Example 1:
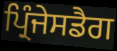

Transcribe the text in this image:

ਪ੍ਰਿੰਜੇਸਡੈਗ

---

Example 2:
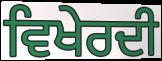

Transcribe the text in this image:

ਵਿਖੇਰਦੀ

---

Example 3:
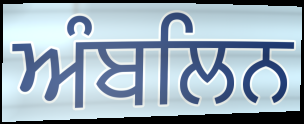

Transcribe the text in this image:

ਅੰਬਲਿਨ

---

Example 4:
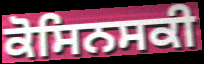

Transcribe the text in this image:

ਕੋਸਿਨਸਕੀ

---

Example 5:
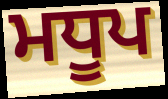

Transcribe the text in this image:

ਮਧੂਪ